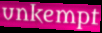
unkempt